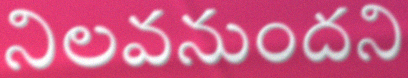
నిలవనుందని